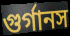
গুর্গানস